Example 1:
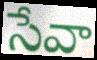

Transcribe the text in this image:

సేవా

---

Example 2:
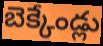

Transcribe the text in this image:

బెక్కేండ్లు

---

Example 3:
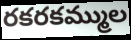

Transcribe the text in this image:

రకరకమ్ముల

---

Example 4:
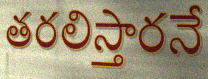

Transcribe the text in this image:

తరలిస్తారనే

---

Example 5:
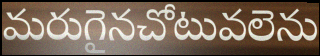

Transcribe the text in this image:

మరుగైనచోటువలెను